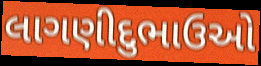
લાગણીદુભાઉઓ